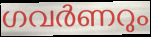
ഗവർണറും